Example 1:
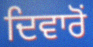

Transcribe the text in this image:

ਦਿਵਾਰੋਂ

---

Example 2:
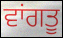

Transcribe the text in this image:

ਵਾਂਗਤੂ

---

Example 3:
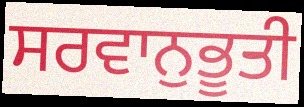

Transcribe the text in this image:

ਸਰਵਾਨੁਭੂਤੀ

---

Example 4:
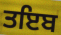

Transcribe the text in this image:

ਤਇਬ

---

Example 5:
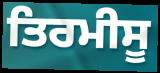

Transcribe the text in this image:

ਤਿਰਮੀਸੂ